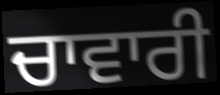
ਚਾਵਾਰੀ